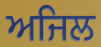
ਅਜਿਲ